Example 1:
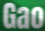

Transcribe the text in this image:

Gao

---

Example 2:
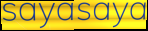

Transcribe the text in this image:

sayasaya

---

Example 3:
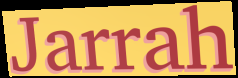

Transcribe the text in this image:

Jarrah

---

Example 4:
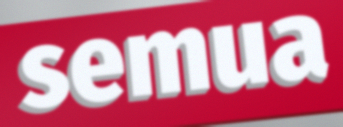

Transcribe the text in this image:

semua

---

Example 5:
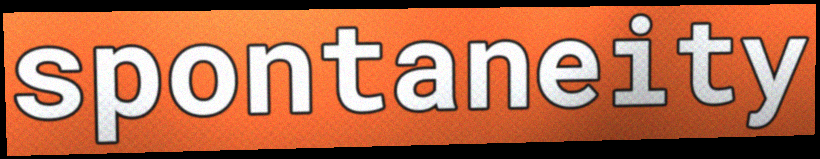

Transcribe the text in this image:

spontaneity